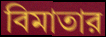
বিমাতার